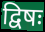
द्विषः